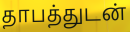
தாபத்துடன்